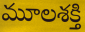
మూలశక్తి